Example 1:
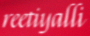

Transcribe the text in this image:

reetiyalli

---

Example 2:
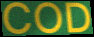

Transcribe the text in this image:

COD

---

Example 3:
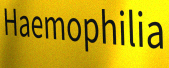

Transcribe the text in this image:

Haemophilia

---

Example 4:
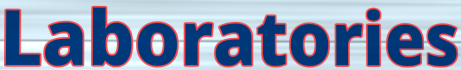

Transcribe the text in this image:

Laboratories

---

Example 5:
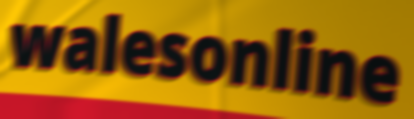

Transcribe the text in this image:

walesonline